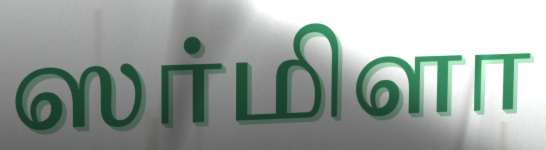
ஸர்மிளா